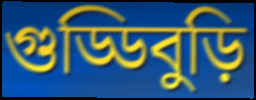
গুড্ডিবুড়ি